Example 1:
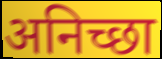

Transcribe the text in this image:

अनिच्छा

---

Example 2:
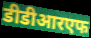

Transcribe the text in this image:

डीडीआरएफ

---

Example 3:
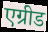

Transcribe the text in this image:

एग्रीड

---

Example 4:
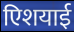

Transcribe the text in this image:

एिशयाई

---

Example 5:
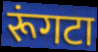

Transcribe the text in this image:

रूंगटा